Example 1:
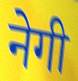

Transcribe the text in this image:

नेगी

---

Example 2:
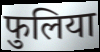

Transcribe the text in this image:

फुलिया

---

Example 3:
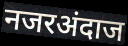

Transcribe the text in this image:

नजरअंदाज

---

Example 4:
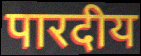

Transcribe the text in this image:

पारदीय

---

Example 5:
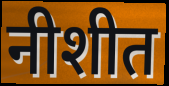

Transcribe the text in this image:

नीशीत